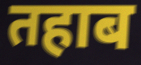
तहाब